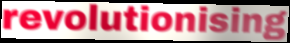
revolutionising